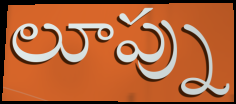
లూప్ను